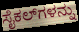
ಸೈಕಲ್‌ಗಳನ್ನು